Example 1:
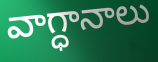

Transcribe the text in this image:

వాగ్ధానాలు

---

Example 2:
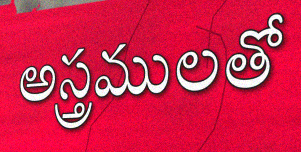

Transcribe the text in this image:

అస్త్రములతో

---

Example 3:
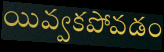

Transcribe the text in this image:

యివ్వకపోవడం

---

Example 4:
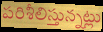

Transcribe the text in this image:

పరిశీలిస్తున్నట్లు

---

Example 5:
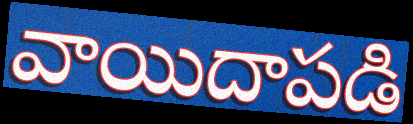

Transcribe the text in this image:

వాయిదాపడి